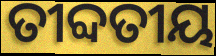
ତୀବ୍ଦତୀୟ